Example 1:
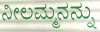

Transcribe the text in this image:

ನೀಲಮ್ಮನನ್ನು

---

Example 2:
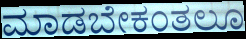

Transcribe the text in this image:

ಮಾಡಬೇಕಂತಲೂ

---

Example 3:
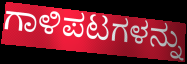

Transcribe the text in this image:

ಗಾಳಿಪಟಗಳನ್ನು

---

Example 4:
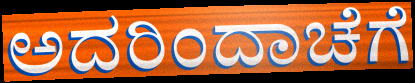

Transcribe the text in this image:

ಅದರಿಂದಾಚೆಗೆ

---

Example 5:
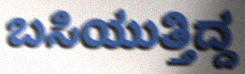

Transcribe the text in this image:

ಬಸಿಯುತ್ತಿದ್ದ